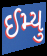
ઈમ્યુ